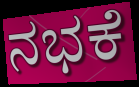
ನಭಕೆ